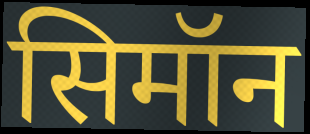
सिमॉन